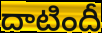
దాటిందీ